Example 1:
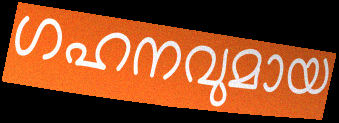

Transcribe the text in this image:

ഗഹനവുമായ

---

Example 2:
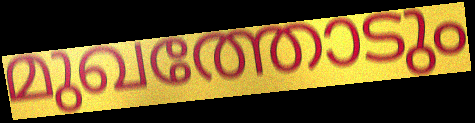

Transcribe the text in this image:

മുഖത്തോടും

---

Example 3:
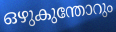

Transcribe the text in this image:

ഒഴുകുന്തോറും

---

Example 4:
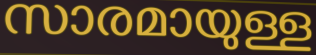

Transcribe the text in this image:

സാരമായുള്ള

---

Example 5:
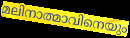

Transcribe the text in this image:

മലിനാത്മാവിനെയും